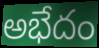
అభేదం